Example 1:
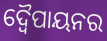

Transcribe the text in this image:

ଦ୍ୱୈପାୟନର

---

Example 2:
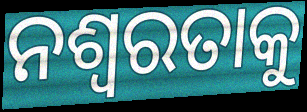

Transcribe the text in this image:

ନଶ୍ବରତାକୁ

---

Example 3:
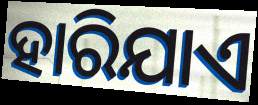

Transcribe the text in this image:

ହାରିଯାଏ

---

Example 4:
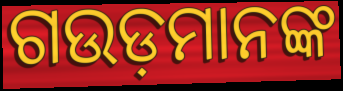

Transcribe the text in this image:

ଗଉଡ଼ମାନଙ୍କ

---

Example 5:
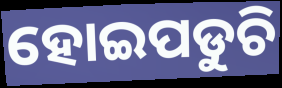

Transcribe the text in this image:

ହୋଇପଡୁଚି